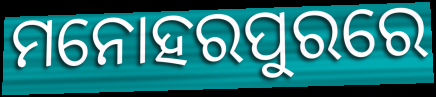
ମନୋହରପୁରରେ